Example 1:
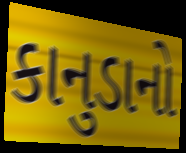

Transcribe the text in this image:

કાનુડાનો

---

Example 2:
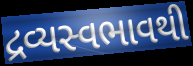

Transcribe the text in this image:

દ્રવ્યસ્વભાવથી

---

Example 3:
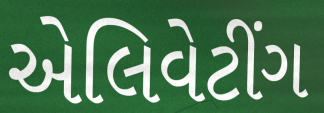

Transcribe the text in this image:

એલિવેટીંગ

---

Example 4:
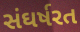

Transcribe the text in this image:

સંઘર્ષરત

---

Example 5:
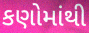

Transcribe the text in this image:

કણોમાંથી